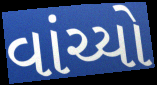
વાંચ્યો